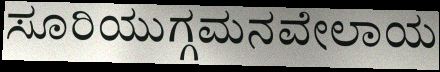
ಸೂರಿಯುಗ್ಗಮನವೇಲಾಯ